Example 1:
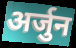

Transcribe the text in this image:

अर्जुन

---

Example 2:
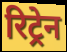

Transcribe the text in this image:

रिट्रेन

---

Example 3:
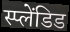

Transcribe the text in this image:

स्प्लेंडिड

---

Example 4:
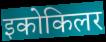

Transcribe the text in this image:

इकोकिलर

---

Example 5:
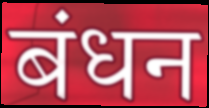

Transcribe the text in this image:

बंधन